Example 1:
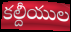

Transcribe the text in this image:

కల్దీయుల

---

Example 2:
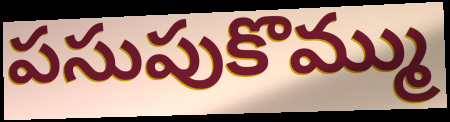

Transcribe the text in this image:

పసుపుకొమ్ము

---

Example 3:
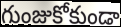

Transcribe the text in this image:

గుంజుకోకుండా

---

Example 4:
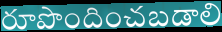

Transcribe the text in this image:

రూపొందించబడాలి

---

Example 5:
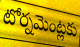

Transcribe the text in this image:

టోర్నమెంట్లకు